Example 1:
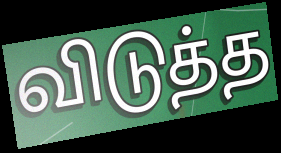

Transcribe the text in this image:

விடுத்த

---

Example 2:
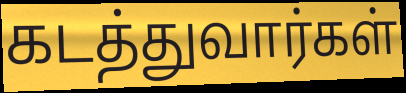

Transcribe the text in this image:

கடத்துவார்கள்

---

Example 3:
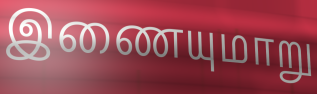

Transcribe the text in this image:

இணையுமாறு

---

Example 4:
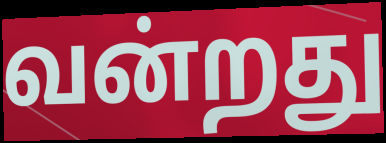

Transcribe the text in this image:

வன்றது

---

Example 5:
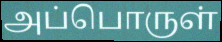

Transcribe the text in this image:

அப்பொருள்